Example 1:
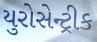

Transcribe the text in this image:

યુરોસેન્ટ્રીક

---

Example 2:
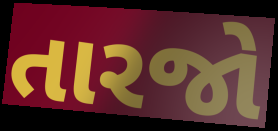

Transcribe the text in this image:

તારજો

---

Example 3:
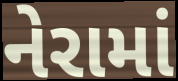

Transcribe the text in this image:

નેરામાં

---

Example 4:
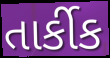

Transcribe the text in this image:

તાર્કીક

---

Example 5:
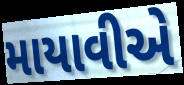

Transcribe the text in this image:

માયાવીએ